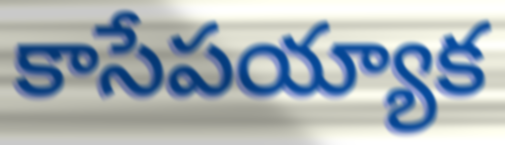
కాసేపయ్యాక